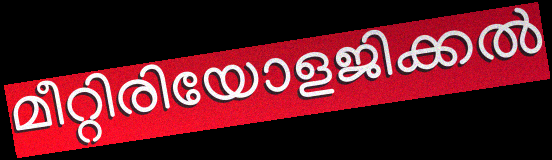
മീറ്റിരിയോളജിക്കൽ